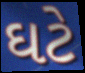
ઘટે